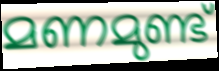
മണമുണ്ട്